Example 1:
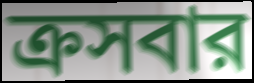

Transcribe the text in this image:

ক্রসবার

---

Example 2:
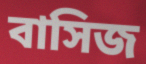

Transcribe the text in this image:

বাসিজ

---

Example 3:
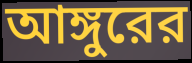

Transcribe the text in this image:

আঙ্গুরের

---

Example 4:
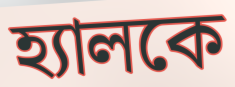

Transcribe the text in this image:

হ্যালকে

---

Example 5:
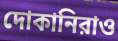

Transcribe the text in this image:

দোকানিরাও